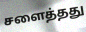
சளைத்தது